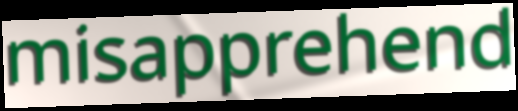
misapprehend